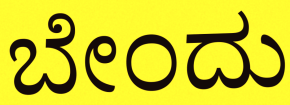
ಬೇಂದು